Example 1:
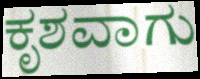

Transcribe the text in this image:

ಕೃಶವಾಗು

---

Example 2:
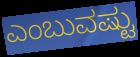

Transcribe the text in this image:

ಎಂಬುವಷ್ಟು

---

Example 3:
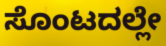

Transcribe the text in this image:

ಸೊಂಟದಲ್ಲೇ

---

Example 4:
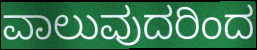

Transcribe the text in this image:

ವಾಲುವುದರಿಂದ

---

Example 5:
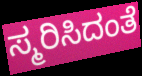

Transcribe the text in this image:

ಸ್ಮರಿಸಿದಂತೆ